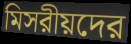
মিসরীয়দের